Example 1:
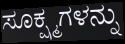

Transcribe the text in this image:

ಸೂಕ್ಷ್ಮಗಳನ್ನು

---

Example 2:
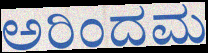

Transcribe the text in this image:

ಅರಿಂದಮ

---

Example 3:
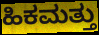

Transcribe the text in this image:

ಹಿಕಮತ್ತು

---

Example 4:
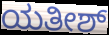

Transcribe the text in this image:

ಯತೀಶ್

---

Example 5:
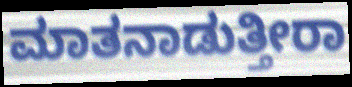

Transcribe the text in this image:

ಮಾತನಾಡುತ್ತೀರಾ